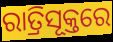
ରାତ୍ରିସୂକ୍ତରେ